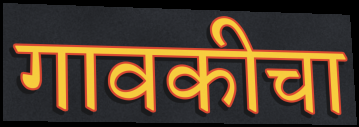
गावकीचा